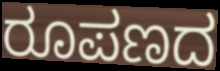
ರೂಪಣದ